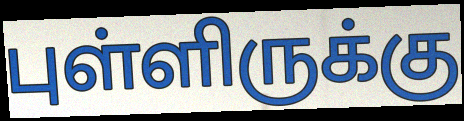
புள்ளிருக்கு